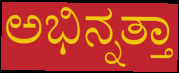
ಅಭಿನ್ನತ್ತಾ